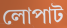
লোপাট